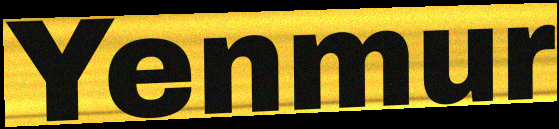
Yenmur